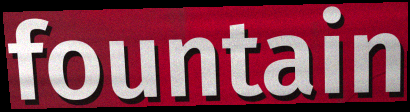
fountain